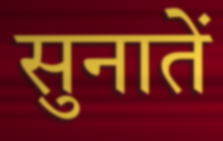
सुनातें